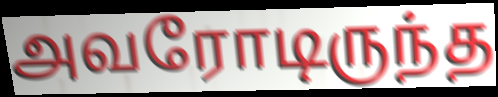
அவரோடிருந்த